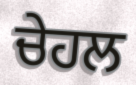
ਚੇਹਲ